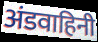
अंडवाहिनी